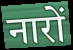
नारों